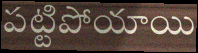
పట్టిపోయాయి